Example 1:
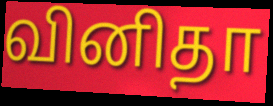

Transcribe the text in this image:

வினிதா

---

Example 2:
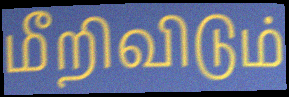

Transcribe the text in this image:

மீறிவிடும்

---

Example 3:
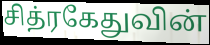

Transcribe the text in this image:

சித்ரகேதுவின்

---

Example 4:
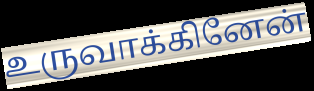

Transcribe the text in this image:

உருவாக்கினேன்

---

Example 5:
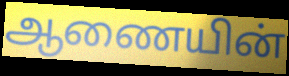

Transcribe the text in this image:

ஆணையின்